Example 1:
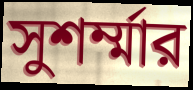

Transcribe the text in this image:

সুশর্ম্মার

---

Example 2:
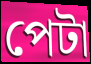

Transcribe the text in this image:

পেটা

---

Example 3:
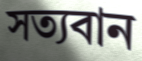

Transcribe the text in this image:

সত্যবান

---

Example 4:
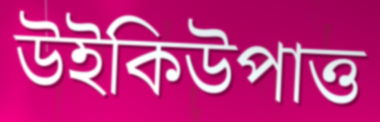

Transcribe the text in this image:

উইকিউপাত্ত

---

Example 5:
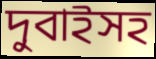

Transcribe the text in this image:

দুবাইসহ